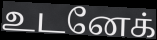
உடனேக்